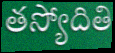
తస్యోదితి